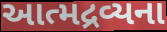
આત્મદ્રવ્યના